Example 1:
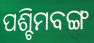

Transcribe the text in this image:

ପଶ୍ଚିମବଙ୍ଗ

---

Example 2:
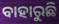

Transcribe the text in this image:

ବାହାରୁଛି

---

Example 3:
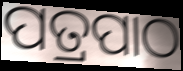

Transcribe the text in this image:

ପତ୍ରପାଠ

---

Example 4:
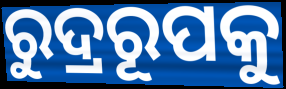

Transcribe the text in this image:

ରୁଦ୍ରରୂପକୁ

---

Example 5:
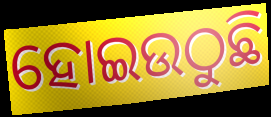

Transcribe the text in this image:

ହୋଇଉଠୁଛି